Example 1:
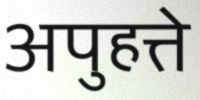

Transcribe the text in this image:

अपुहत्ते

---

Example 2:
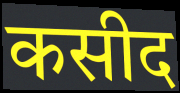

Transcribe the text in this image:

कसीद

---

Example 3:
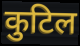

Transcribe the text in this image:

कुटिल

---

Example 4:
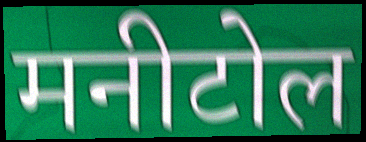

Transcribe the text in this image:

मनीटोल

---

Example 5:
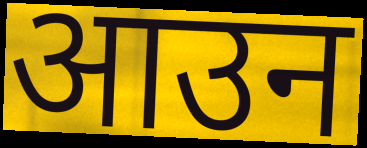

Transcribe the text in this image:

आउन